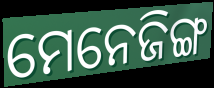
ମେନେଜିଙ୍ଗ